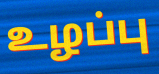
உழப்பு